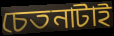
চেতনাটাই